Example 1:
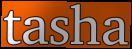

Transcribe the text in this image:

tasha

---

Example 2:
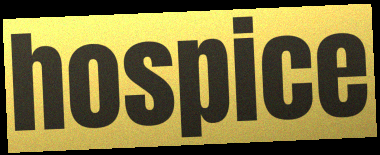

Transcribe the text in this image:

hospice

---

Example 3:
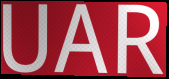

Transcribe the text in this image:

UAR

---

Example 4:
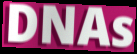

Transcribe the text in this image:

DNAs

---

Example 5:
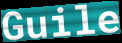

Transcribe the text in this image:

Guile